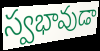
స్వభావుడా